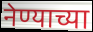
नेण्याच्या